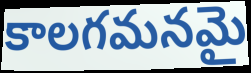
కాలగమనమై